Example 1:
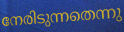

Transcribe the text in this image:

നേരിടുന്നതെന്നു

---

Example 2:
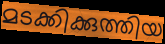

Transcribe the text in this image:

മടക്കിക്കുത്തിയ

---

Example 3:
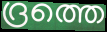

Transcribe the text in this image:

ദ്രത്തെ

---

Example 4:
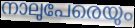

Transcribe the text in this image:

നാലുപേരെയും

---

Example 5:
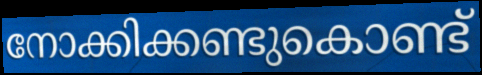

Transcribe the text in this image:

നോക്കിക്കണ്ടുകൊണ്ട്